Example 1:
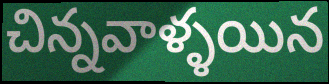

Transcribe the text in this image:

చిన్నవాళ్ళయిన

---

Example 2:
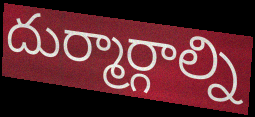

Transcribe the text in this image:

దుర్మార్గాల్ని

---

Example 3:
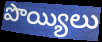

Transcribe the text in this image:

పొయ్యిలు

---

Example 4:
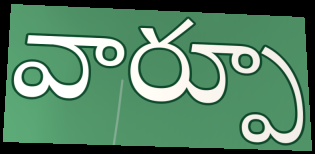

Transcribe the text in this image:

వార్పూ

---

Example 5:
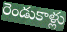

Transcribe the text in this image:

రెండుకాళ్లు